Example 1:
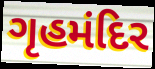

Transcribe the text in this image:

ગૃહમંદિર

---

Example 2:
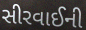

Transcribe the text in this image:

સીરવાઈની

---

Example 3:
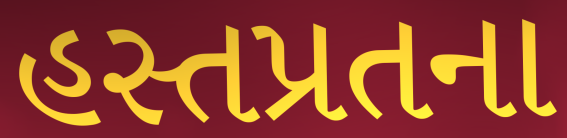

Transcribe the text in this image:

હસ્તપ્રતના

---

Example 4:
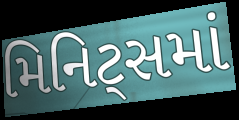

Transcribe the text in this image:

મિનિટ્સમાં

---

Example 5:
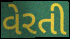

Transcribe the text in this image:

વેરતી